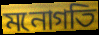
মনোগতি